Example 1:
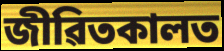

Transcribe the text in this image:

জীৱিতকালত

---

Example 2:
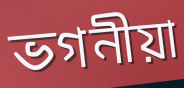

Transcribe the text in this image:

ভগনীয়া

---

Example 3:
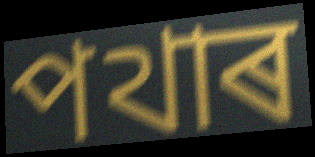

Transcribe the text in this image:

পথাৰ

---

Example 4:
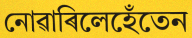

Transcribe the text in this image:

নোৱাৰিলেহেঁতেন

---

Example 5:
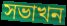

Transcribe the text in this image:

সভাখন